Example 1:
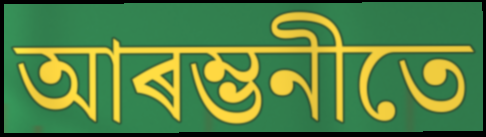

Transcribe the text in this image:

আৰম্ভনীতে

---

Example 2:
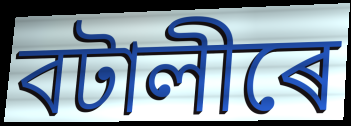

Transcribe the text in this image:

বটালীৰে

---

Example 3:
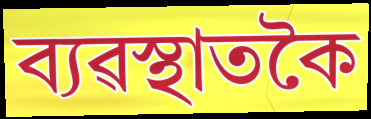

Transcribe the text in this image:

ব্যৱস্থাতকৈ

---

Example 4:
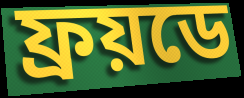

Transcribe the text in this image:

ফ্ৰয়ডে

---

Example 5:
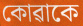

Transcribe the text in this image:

কোৱাকে